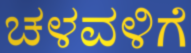
ಚಳವಳಿಗೆ